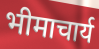
भीमाचार्य